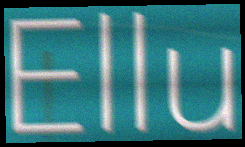
Ellu